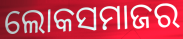
ଲୋକସମାଜର